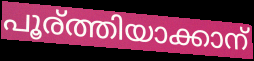
പൂര്ത്തിയാക്കാന്